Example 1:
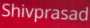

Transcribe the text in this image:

Shivprasad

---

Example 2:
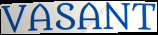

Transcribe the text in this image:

VASANT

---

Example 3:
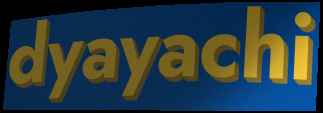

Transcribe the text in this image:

dyayachi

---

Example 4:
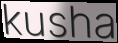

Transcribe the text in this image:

kusha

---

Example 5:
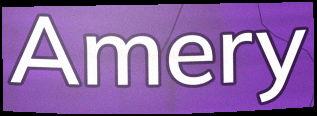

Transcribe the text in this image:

Amery